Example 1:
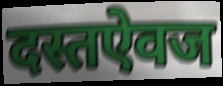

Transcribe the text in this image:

दस्तऐवज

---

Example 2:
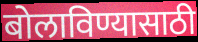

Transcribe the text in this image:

बोलाविण्यासाठी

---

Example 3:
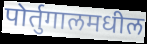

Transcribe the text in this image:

पोर्तुगालमधील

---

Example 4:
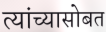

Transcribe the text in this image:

त्यांच्यासोबत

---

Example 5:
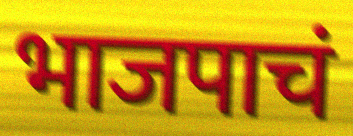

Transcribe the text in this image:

भाजपाचं